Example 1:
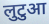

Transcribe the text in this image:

लुटुआ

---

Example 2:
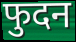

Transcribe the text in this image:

फुदन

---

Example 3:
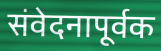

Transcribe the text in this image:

संवेदनापूर्वक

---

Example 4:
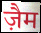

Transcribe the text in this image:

ज़ैम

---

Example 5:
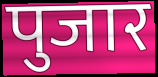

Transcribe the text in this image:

पुजार